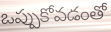
ఒప్పుకోవడంతో